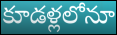
కూడళ్లలోనూ